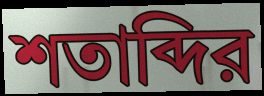
শতাব্দির